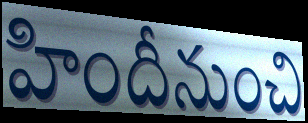
హిందీనుంచి